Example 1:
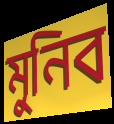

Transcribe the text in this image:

মুনিব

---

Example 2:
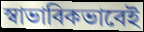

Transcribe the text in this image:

স্বাভাবিকভাবেই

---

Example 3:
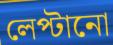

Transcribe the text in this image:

লেপ্টানো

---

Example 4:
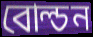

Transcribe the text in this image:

বোল্ডন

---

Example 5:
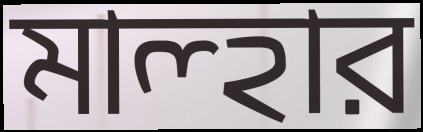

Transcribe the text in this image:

মাল্হার